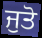
ਜੁਤੋ